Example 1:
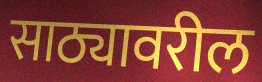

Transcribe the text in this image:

साठ्यावरील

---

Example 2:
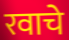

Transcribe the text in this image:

रवाचे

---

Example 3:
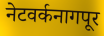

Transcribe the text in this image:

नेटवर्कनागपूर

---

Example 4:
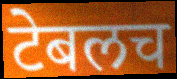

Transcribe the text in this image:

टेबलच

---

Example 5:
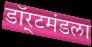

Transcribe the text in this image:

डॉर्टमंडला